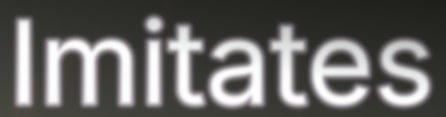
Imitates